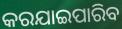
କରଯାଇପାରିବ